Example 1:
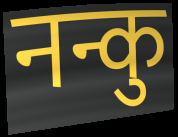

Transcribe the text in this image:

नन्कु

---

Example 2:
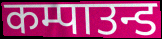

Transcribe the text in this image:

कम्पाउन्ड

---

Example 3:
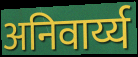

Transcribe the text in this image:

अनिवार्य्य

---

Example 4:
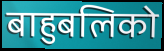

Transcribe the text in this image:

बाहुबलिको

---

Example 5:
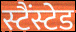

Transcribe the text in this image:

स्टैंस्टेड